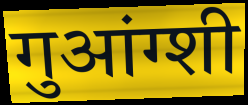
गुआंग्शी